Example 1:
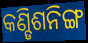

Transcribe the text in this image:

କଣ୍ଡିଶନିଙ୍ଗ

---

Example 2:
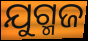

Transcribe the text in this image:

ଯୁଗ୍ମଜ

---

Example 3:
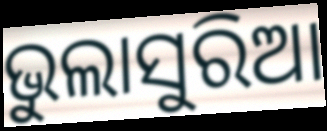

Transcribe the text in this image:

ଭୁଲାସୁରିଆ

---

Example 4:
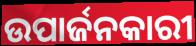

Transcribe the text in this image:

ଉପାର୍ଜନକାରୀ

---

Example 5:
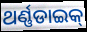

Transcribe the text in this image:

ଥର୍ଣ୍ଣଡାଇକ୍